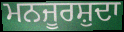
ਮਨਜੂਰਸ਼ੁਦਾ